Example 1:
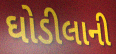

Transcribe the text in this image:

ઘોડીલાની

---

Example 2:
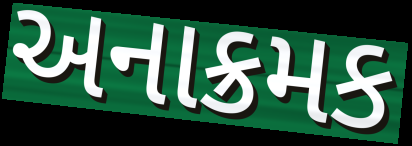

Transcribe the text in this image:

અનાક્રમક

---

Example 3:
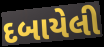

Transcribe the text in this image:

દબાયેલી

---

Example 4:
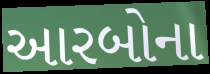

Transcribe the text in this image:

આરબોના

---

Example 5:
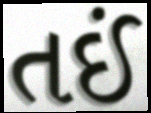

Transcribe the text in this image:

તઈં